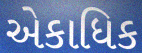
એકાધિક